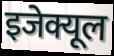
इजेक्यूल